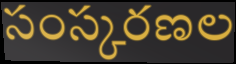
సంస్కరణల